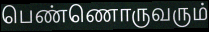
பெண்ணொருவரும்